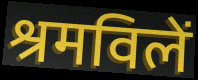
श्रमविलें